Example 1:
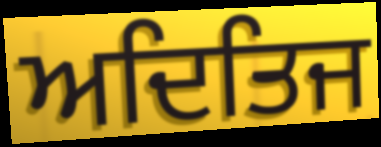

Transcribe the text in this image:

ਅਦਿਤਿਜ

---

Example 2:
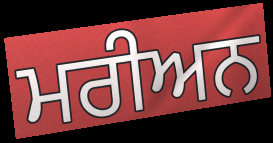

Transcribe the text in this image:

ਮਰੀਅਨ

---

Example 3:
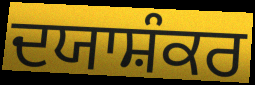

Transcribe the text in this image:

ਦਯਾਸ਼ੰਕਰ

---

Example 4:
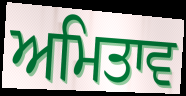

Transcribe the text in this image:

ਅਮਿਤਾਵ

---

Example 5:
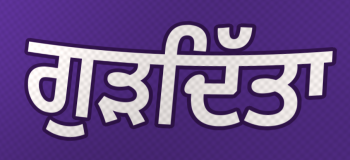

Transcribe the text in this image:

ਗੁੜਦਿੱਤਾ